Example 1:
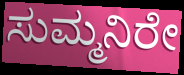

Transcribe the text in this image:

ಸುಮ್ಮನಿರೇ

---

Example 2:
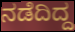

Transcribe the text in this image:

ನಡೆದಿದ್ದ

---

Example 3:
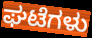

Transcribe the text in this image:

ಘಟೆಗಳು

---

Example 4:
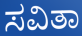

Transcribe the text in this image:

ಸವಿತಾ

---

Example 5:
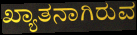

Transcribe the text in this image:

ಖ್ಯಾತನಾಗಿರುವ